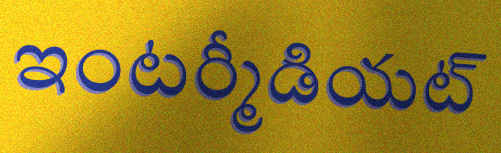
ఇంటర్మీడియట్